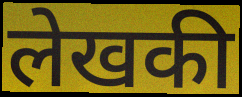
लेखकी